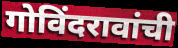
गोविंदरावांची